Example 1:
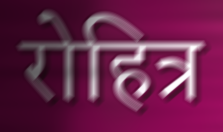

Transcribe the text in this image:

रोहित्र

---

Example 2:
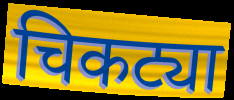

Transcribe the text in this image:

चिकट्या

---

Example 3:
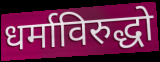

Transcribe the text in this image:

धर्माविरुद्धो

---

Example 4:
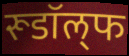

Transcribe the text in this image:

रूडॉल्फ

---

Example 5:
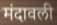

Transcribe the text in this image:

मंदावली